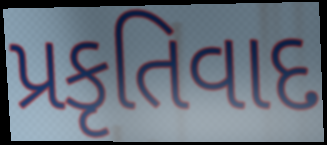
પ્રકૃતિવાદ